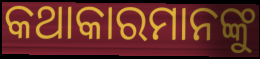
କଥାକାରମାନଙ୍କୁ